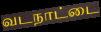
வடநாட்டை